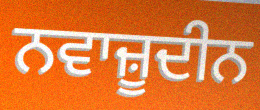
ਨਵਾਜ਼ੂਦੀਨ